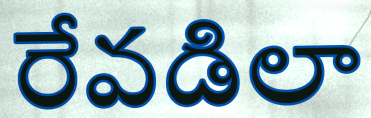
రేవడిలా